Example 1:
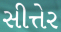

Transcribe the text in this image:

સીત્તેર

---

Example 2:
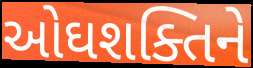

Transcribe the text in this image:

ઓઘશક્તિને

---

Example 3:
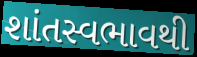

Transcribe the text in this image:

શાંતસ્વભાવથી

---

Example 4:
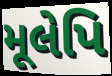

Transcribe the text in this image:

મૂલેપિ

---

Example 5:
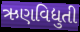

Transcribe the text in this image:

ઋણવિદ્યુતી